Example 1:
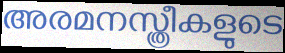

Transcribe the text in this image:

അരമനസ്ത്രീകളുടെ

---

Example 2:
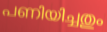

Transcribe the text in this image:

പണിയിച്ചതും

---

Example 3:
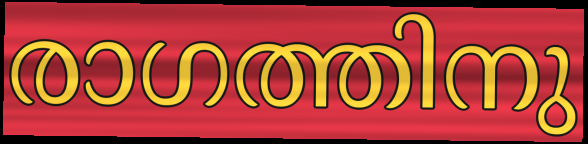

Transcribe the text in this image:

രാഗത്തിനു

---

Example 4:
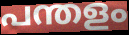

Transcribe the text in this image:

പന്തളം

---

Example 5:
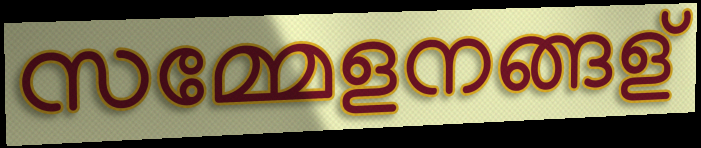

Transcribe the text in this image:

സമ്മേളനങ്ങള്